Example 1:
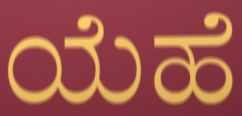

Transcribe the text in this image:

ಯೆಹೆ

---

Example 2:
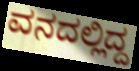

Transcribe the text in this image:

ವನದಲ್ಲಿದ್ದ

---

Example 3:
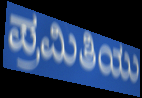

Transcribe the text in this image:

ಪ್ರಮಿತಿಯು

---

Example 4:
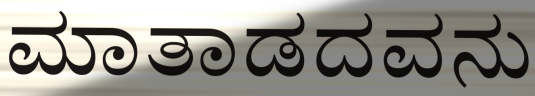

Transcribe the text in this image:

ಮಾತಾಡದವನು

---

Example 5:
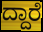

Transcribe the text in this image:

ದ್ದಾರೆ